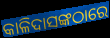
କାଳିଦାସଙ୍କଠାରେ